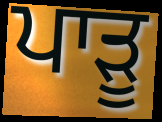
ਪਾੜੂ